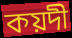
কয়দী